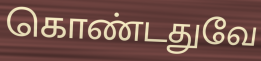
கொண்டதுவே